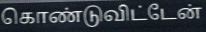
கொண்டுவிட்டேன்